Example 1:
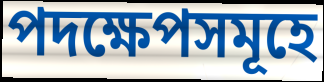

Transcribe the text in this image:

পদক্ষেপসমূহে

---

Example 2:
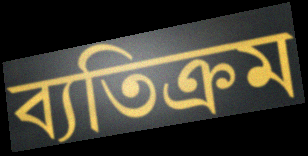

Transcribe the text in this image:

ব্যতিক্ৰম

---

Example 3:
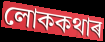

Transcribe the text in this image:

লোককথাৰ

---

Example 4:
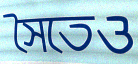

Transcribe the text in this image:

সৈতেও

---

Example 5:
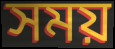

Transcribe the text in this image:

সময়